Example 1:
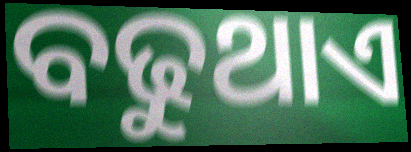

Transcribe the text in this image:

ବଢୁଥାଏ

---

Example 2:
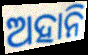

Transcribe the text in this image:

ଅହାନି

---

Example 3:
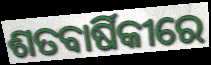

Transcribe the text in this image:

ଶତବାର୍ଷିକୀରେ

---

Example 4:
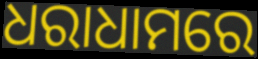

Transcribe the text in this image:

ଧରାଧାମରେ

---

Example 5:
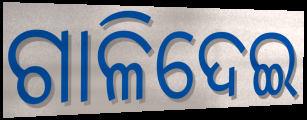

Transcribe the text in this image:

ଗାଳିଦେଇ